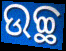
ଉଚ୍ଛ